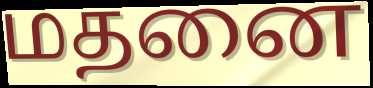
மதனை